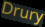
Drury